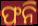
ଫନି